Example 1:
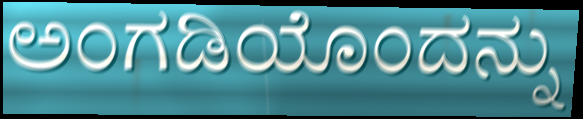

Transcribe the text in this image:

ಅಂಗಡಿಯೊಂದನ್ನು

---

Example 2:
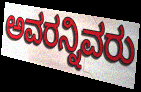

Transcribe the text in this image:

ಅವರನ್ನಿವರು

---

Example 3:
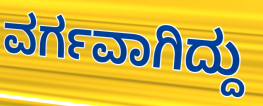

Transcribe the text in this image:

ವರ್ಗವಾಗಿದ್ದು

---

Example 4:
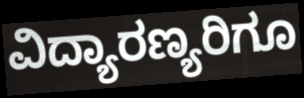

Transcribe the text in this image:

ವಿದ್ಯಾರಣ್ಯರಿಗೂ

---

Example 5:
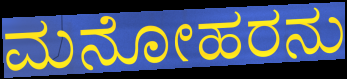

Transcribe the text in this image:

ಮನೋಹರನು